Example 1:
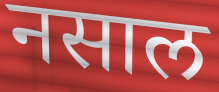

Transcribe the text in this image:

नसाल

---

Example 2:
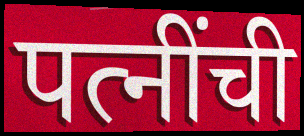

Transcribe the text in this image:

पत्नींची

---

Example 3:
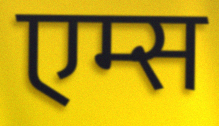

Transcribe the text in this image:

एम्स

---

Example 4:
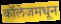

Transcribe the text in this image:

कॉलेजमधून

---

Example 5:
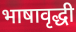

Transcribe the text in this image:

भाषावृद्धी